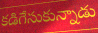
కడిగేసుకున్నాడు